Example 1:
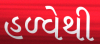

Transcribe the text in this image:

હળ્વેથી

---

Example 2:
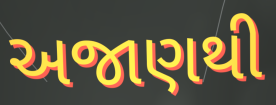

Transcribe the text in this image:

અજાણથી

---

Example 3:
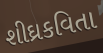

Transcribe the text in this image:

શીઘ્રકવિતા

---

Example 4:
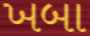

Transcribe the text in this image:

ખબા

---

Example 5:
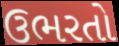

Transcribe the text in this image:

ઉભરતો